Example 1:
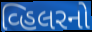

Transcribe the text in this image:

વ્હિલરનો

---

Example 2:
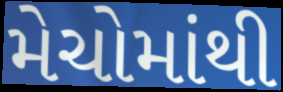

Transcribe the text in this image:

મેચોમાંથી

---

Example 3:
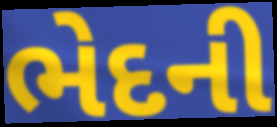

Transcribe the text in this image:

ભેદની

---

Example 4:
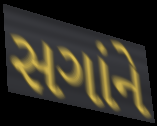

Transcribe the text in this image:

સગાંને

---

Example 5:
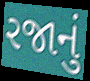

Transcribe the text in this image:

રજાનું